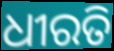
ଧୀରତି